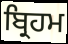
ਬ੍ਰਿਹਮ